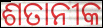
ଶତାନୀକ